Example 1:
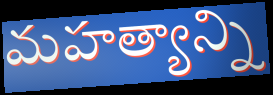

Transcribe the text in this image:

మహత్యాన్ని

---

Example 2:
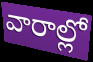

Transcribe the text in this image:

వారాల్లో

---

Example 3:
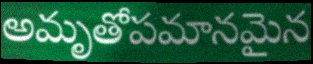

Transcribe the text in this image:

అమృతోపమానమైన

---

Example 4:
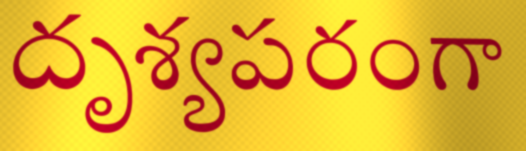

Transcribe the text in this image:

దృశ్యపరంగా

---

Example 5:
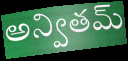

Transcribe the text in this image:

అన్వితమ్